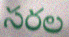
సరల